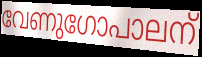
വേണുഗോപാലന്